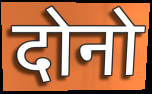
दोनो